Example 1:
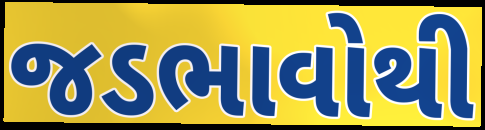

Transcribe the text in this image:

જડભાવોથી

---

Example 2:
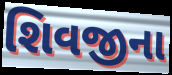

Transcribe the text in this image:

શિવજીના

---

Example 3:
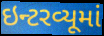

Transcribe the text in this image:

ઇન્ટરવ્યૂમાં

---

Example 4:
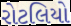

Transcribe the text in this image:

રોટલિયો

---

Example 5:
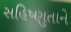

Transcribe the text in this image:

સહિષ્ણુતાને